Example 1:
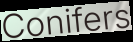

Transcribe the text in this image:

Conifers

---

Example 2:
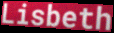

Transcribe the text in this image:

Lisbeth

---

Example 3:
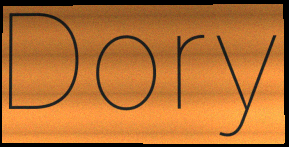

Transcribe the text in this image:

Dory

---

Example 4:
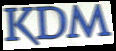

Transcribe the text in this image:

KDM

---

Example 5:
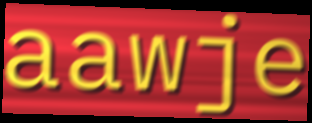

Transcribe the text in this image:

aawje